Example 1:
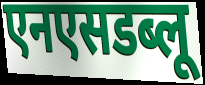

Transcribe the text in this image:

एनएसडब्लू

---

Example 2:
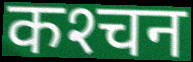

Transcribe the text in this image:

कश्चन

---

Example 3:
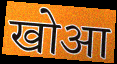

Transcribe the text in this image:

खोआ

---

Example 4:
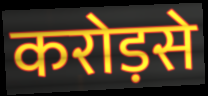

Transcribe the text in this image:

करोड़से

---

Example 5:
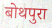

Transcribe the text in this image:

बोथपुरा